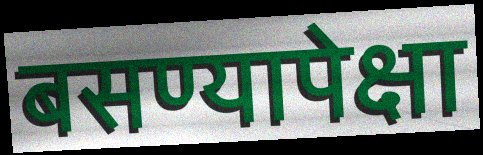
बसण्यापेक्षा